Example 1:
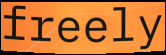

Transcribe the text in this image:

freely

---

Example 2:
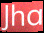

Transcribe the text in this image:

Jha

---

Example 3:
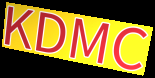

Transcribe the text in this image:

KDMC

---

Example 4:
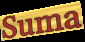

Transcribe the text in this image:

Suma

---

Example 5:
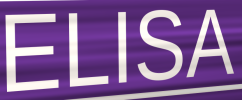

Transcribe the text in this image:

ELISA